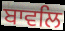
ਬਾਵਲਿ